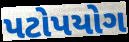
પટોપયોગ